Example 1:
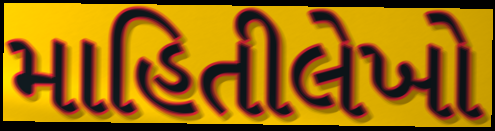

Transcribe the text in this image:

માહિતીલેખો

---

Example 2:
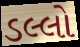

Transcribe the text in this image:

ડલ્લો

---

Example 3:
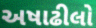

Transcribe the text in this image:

અષાઢીલો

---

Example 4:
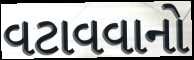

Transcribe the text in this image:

વટાવવાનો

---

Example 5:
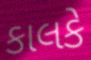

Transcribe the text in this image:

કાલકે